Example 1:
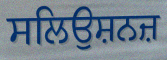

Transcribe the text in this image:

ਸਲਿਉਸ਼ਨਜ਼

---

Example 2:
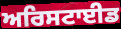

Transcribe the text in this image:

ਅਰਿਸਟਾਈਡ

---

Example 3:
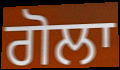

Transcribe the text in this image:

ਗੋਲਾ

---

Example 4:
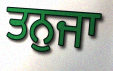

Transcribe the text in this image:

ਤਨੁਜਾ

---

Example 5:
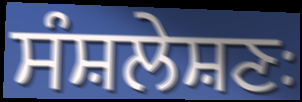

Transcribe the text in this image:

ਸੰਸ਼ਲੇਸ਼ਣਃ